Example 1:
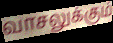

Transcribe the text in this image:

வாசலுக்கும்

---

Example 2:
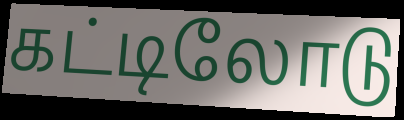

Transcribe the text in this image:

கட்டிலோடு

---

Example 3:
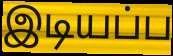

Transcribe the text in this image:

இடியப்ப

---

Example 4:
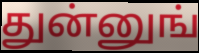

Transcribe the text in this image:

துன்னுங்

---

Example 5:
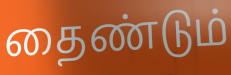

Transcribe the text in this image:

தைண்டும்